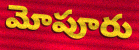
మోపూరు